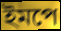
ইমপে